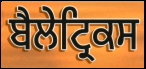
ਬੈਲੇਟ੍ਰਿਕਸ